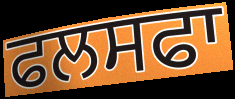
ਫਲਸਫਾ